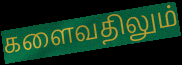
களைவதிலும்